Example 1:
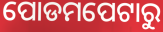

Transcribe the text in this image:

ପୋଡମପେଟାରୁ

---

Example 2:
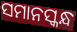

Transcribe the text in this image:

ସମାନସ୍କନ୍ଧ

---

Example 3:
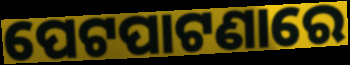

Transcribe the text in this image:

ପେଟପାଟଣାରେ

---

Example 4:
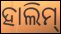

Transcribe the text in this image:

ହାଲିମ୍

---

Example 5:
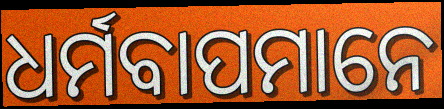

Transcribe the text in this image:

ଧର୍ମବାପମାନେ